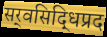
सर्वसिद्धिप्रद